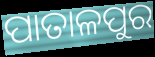
ପାତାଳପୁର